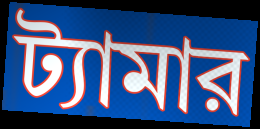
ট্যামার